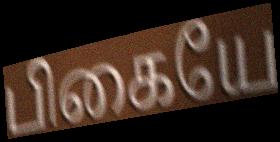
பிகையே